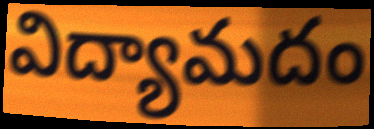
విద్యామదం